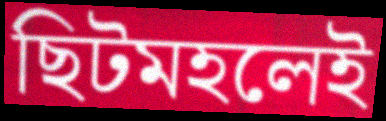
ছিটমহলেই